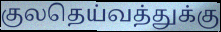
குலதெய்வத்துக்கு